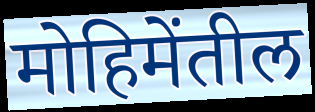
मोहिमेंतील